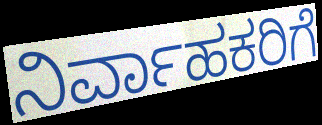
ನಿರ್ವಾಹಕರಿಗೆ